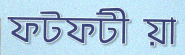
ফটফটীয়া